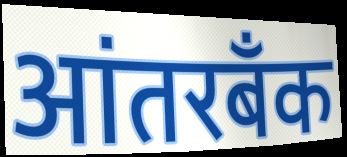
आंतरबँक